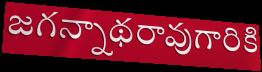
జగన్నాథరావుగారికి